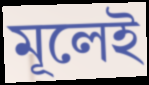
মূলেই